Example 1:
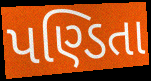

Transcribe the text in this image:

પણ્ડિતા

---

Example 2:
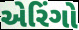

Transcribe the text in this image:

એરિંગો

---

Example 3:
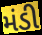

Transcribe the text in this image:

મંડી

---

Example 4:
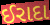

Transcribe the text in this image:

ઈરાદા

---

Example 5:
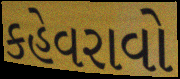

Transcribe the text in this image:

કહેવરાવો